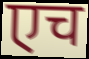
एच